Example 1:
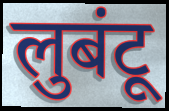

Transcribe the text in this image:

लुबंटू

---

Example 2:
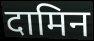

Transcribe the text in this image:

दामिन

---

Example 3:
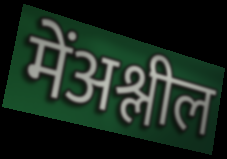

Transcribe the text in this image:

मेंअश्लील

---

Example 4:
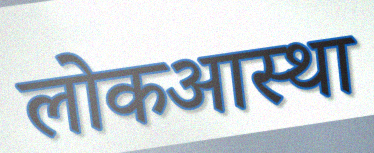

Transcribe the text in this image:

लोकआस्था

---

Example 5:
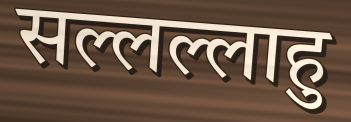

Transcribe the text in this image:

सल्लल्लाहु